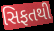
સિફતથી